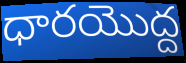
ధారయొద్ద